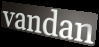
vandan